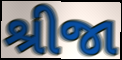
શ્રીજા